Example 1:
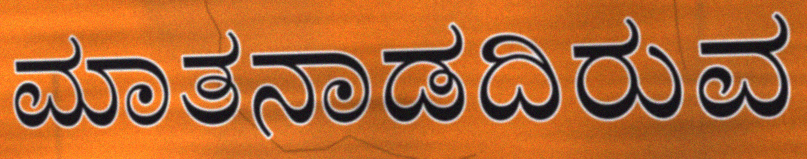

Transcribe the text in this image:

ಮಾತನಾಡದಿರುವ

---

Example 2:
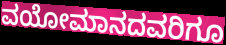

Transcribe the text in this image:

ವಯೋಮಾನದವರಿಗೂ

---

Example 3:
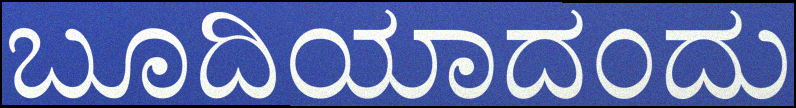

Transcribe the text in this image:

ಬೂದಿಯಾದಂದು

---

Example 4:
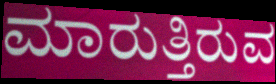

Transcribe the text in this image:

ಮಾರುತ್ತಿರುವ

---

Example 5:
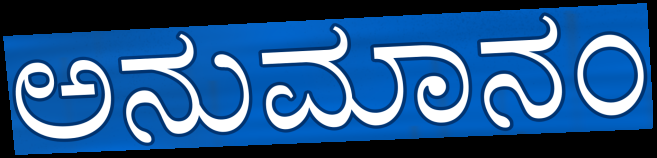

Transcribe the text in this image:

ಅನುಮಾನಂ